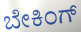
ಬೇಕಿಂಗ್